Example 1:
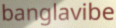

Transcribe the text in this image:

banglavibe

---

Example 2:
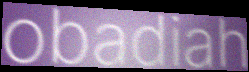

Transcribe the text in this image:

obadiah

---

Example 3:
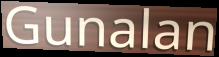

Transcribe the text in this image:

Gunalan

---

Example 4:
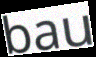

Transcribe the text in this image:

bau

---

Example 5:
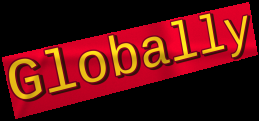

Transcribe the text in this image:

Globally